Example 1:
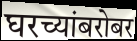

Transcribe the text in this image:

घरच्यांबरोबर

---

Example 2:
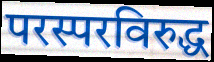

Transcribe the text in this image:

परस्परविरुद्ध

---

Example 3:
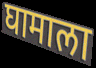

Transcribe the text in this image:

घामाला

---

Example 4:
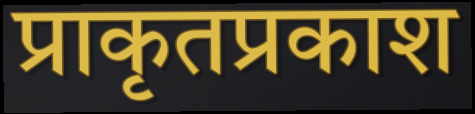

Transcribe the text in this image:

प्राकृतप्रकाश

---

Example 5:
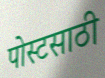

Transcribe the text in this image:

पोस्टसाठी